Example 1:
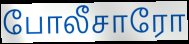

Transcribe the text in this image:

போலீசாரோ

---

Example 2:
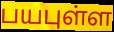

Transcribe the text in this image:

பயபுள்ள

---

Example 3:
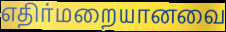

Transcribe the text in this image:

எதிர்மறையானவை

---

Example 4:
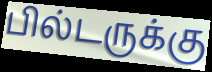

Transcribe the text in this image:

பில்டருக்கு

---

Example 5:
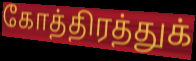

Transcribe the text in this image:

கோத்திரத்துக்